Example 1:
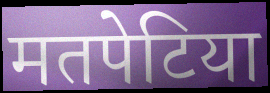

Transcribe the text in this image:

मतपेटिया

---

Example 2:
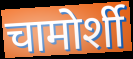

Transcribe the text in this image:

चामोर्शी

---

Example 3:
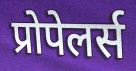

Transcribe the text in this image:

प्रोपेलर्स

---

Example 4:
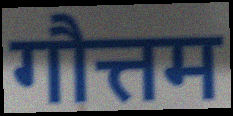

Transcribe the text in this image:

गौत्तम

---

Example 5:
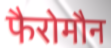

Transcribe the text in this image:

फैरोमौन